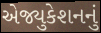
એજ્યુકેશનનું